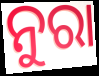
ନୁରା